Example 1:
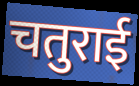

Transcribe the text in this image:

चतुराई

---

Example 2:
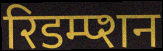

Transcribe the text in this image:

रिडम्प्शन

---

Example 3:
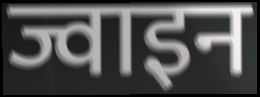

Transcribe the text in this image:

ज्वाइन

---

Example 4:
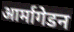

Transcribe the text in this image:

आर्मागेडन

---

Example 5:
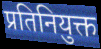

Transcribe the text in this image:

प्रतिनियुक्त